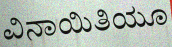
ವಿನಾಯಿತಿಯೂ